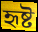
হৃষ্ট